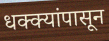
धक्क्यांपासून